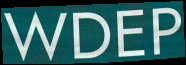
WDEP